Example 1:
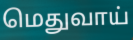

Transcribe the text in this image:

மெதுவாய்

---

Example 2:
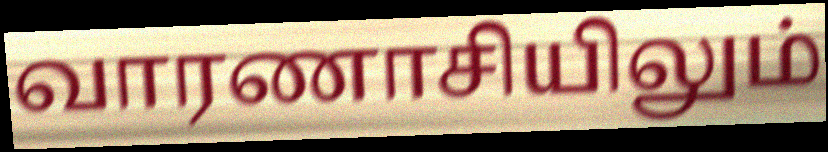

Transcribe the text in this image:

வாரணாசியிலும்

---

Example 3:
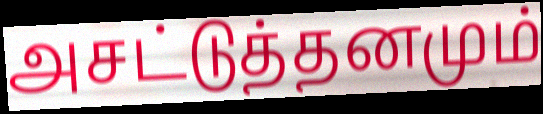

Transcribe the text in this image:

அசட்டுத்தனமும்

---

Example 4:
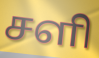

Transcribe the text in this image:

சளி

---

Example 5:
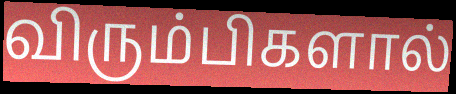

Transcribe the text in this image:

விரும்பிகளால்